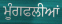
ਮੂੰਗਫਲੀਆਂ